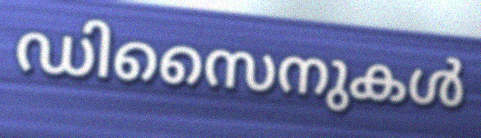
ഡിസൈനുകൾ